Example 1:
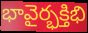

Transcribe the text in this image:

భావైర్భక్తిభి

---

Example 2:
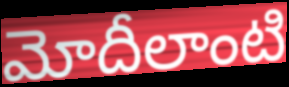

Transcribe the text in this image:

మోదీలాంటి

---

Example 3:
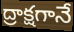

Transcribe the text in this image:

ద్రాక్షగానే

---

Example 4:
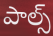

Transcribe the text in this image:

పాల్స్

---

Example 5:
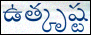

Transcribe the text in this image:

ఉత్కృష్ట